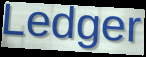
Ledger